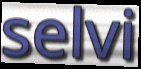
selvi